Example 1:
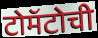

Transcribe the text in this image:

टोमॅटोची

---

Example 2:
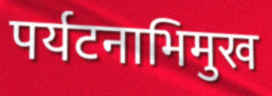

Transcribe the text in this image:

पर्यटनाभिमुख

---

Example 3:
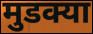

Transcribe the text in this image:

मुडक्या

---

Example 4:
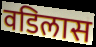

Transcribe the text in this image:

वडिलास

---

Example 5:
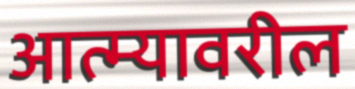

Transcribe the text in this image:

आत्म्यावरील